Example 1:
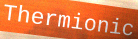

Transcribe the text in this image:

Thermionic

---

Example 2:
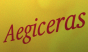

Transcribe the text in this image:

Aegiceras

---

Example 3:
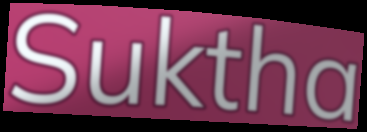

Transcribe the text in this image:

Suktha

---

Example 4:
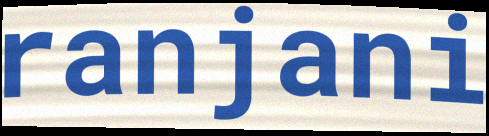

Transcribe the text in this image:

ranjani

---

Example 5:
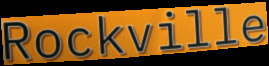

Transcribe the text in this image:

Rockville